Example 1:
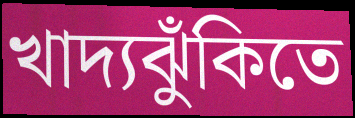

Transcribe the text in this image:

খাদ্যঝুঁকিতে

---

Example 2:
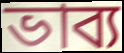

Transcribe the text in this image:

ভাব্য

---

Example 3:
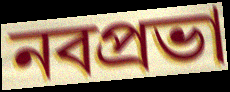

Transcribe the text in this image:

নবপ্রভা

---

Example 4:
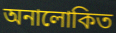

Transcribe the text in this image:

অনালোকিত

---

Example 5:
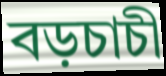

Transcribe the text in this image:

বড়চাচী